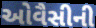
ઓવૈસીની